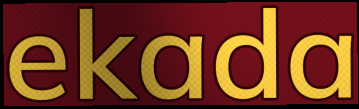
ekada